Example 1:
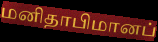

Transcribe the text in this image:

மனிதாபிமானப்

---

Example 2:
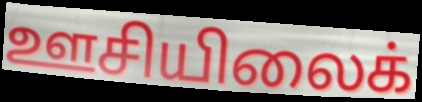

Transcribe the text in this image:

ஊசியிலைக்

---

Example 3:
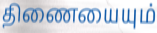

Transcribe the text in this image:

திணையையும்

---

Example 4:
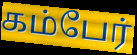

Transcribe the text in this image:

கம்பேர்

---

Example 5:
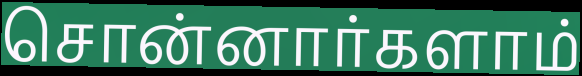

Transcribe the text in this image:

சொன்னார்களாம்